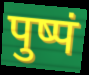
पुष्पं